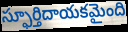
స్ఫూర్తిదాయకమైంది